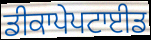
ਡੀਕਾਪੇਪਟਾਈਡ